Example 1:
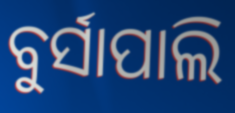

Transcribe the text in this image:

ବୁର୍ସାପାଲି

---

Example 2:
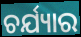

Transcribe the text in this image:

ଚର୍ଯ୍ୟାର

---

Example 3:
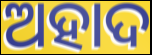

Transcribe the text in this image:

ଅହାଦ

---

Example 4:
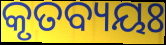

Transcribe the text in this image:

କୃତବ୍ୟୟଃ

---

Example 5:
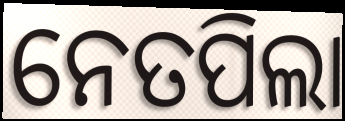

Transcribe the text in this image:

ନେତପିଲା